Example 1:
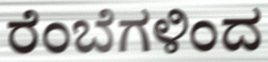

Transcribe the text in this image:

ರೆಂಬೆಗಳಿಂದ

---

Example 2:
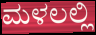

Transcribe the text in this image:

ಮಳಲಲ್ಲಿ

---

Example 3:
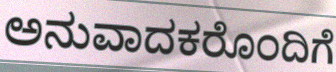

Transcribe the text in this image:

ಅನುವಾದಕರೊಂದಿಗೆ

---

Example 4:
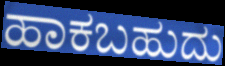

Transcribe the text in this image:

ಹಾಕಬಹುದು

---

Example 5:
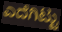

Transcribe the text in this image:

ಎದೆಗಿಟ್ಟು